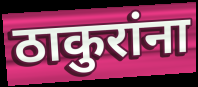
ठाकुरांना